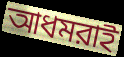
আধমরাই